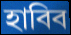
হাবিব